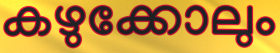
കഴുക്കോലും